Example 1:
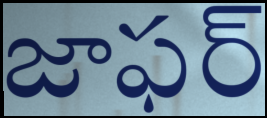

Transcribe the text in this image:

జాఫర్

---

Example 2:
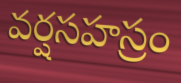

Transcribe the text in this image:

వర్షసహస్రం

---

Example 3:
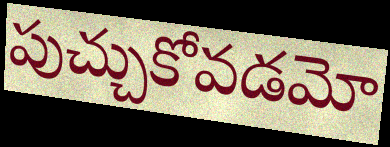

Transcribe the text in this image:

పుచ్చుకోవడమో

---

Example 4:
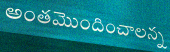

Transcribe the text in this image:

అంతమొందించాలన్న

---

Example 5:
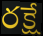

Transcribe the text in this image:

రక్షే